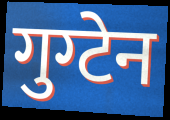
गुग्टेन